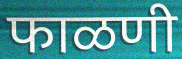
फाळणी